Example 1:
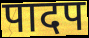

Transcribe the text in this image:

पादप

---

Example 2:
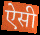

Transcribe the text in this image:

ऐसी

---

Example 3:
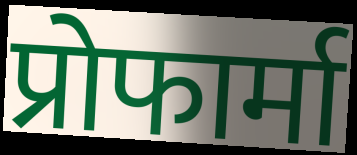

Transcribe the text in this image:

प्रोफार्मा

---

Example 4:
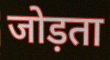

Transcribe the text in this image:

जोड़ता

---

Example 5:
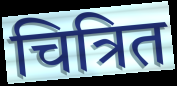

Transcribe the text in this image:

चित्रित